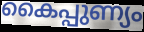
കൈപ്പുണ്യം